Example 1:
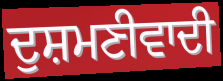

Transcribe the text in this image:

ਦੁਸ਼ਮਣੀਵਾਦੀ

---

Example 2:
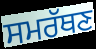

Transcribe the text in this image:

ਸਮਰੱਥਣ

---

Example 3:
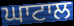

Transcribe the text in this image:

ਘਾਟਾਲ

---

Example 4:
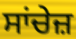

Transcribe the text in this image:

ਸਾਂਚੇਜ਼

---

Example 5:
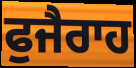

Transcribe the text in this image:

ਫੁਜੈਰਾਹ